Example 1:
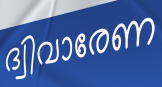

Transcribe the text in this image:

ദ്വിവാരേണ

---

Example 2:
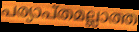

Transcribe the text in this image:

പര്യാപ്തമല്ലാത്ത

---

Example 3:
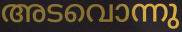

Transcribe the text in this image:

അടവൊന്നു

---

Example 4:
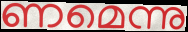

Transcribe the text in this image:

ണമെന്നു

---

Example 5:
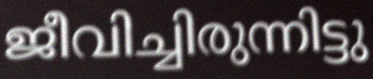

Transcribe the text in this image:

ജീവിച്ചിരുന്നിട്ടു